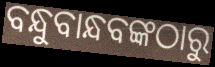
ବନ୍ଧୁବାନ୍ଧବଙ୍କଠାରୁ